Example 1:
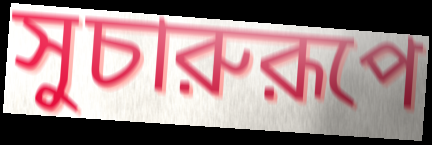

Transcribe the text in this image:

সুচারুরূপে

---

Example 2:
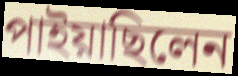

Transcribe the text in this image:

পাইয়াছিলেন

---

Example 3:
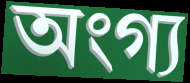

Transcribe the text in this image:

অংগ্য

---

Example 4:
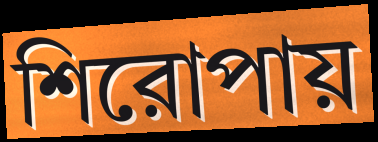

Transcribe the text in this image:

শিরোপায়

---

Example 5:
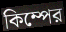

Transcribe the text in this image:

কিম্পের